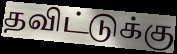
தவிட்டுக்கு